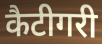
कैटीगरी